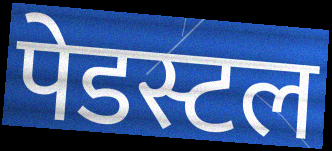
पेडस्टल